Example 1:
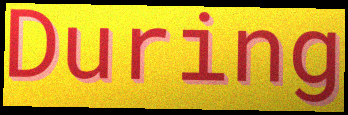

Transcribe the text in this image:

During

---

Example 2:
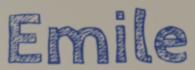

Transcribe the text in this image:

Emile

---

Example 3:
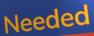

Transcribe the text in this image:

Needed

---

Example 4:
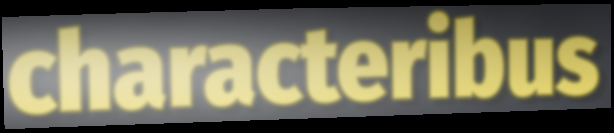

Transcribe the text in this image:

characteribus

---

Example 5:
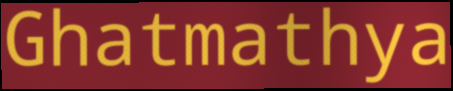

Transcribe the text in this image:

Ghatmathya